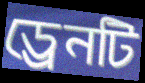
ড্রেনটি